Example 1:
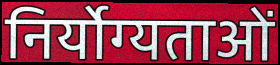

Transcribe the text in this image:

निर्योग्यताओं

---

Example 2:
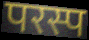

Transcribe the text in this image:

परस्प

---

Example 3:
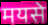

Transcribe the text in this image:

मयसे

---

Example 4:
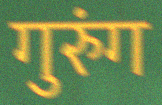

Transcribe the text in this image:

गुरुंग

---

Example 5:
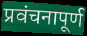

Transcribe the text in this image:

प्रवंचनापूर्ण